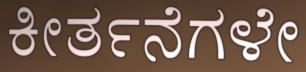
ಕೀರ್ತನೆಗಳೇ